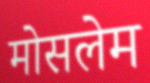
मोसलेम